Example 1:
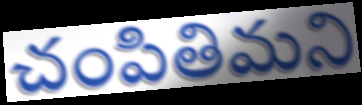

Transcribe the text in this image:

చంపితిమని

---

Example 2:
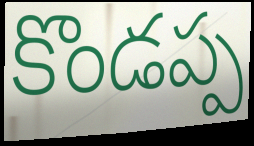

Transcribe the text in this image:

కొండప్ప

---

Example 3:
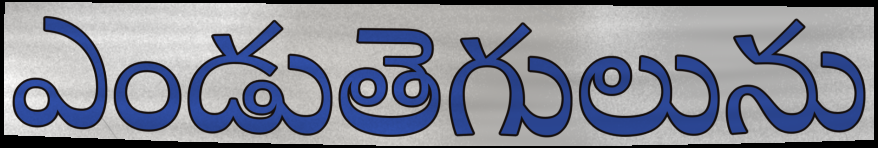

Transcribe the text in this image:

ఎండుతెగులును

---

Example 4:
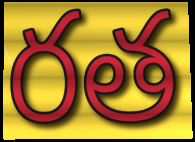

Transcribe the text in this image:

రత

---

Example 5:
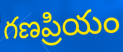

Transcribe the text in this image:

గణప్రియం